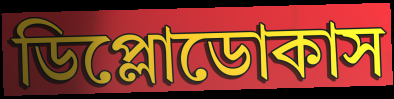
ডিপ্লোডোকাস